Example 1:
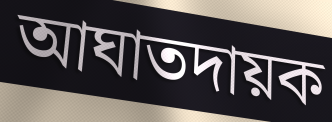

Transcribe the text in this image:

আঘাতদায়ক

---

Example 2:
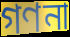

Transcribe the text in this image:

গণনা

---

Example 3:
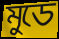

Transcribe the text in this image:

মুডে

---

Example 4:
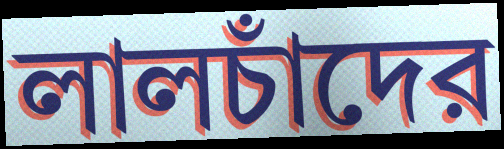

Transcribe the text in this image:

লালচাঁদের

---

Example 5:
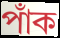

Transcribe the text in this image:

পাঁক